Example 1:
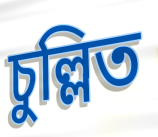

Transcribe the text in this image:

চুল্লিত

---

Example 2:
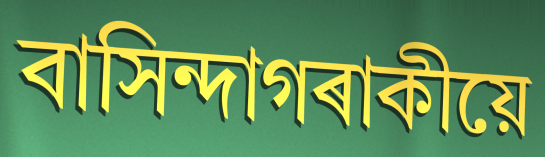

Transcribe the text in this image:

বাসিন্দাগৰাকীয়ে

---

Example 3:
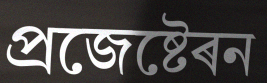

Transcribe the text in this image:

প্ৰজেষ্টেৰন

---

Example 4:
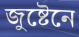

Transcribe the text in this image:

জুষ্টেনে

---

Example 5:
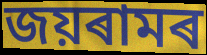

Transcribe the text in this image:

জয়ৰামৰ